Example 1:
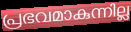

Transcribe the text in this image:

പ്രഭവമാകുന്നില്ല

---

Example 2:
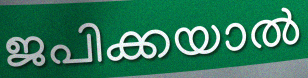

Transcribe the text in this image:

ജപിക്കയാൽ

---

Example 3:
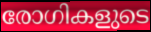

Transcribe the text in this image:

രോഗികളുടെ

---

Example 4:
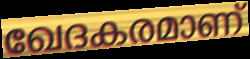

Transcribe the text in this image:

ഖേദകരമാണ്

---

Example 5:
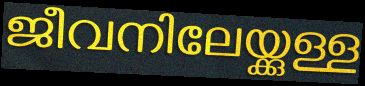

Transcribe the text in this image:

ജീവനിലേയ്ക്കുള്ള